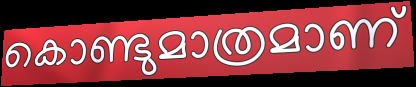
കൊണ്ടുമാത്രമാണ്